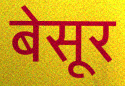
बेसूर